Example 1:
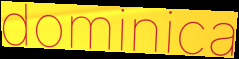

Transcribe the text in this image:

dominica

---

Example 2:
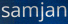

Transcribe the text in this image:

samjan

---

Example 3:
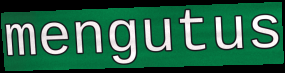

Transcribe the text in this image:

mengutus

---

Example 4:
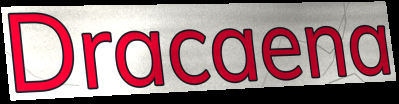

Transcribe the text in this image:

Dracaena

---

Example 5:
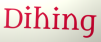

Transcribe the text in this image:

Dihing